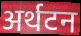
अर्थटन